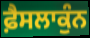
ਫ਼ੈਸਲਾਕੁੰਨ